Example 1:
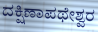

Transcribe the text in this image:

ದಕ್ಷಿಣಾಪಥೇಶ್ವರ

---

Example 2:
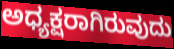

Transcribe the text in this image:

ಅಧ್ಯಕ್ಷರಾಗಿರುವುದು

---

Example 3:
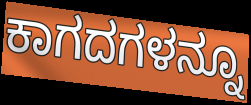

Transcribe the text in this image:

ಕಾಗದಗಳನ್ನೂ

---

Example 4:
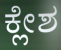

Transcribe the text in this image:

ಕ್ಲೇಶ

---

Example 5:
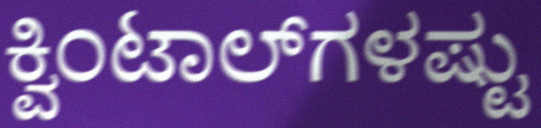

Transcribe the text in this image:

ಕ್ವಿಂಟಾಲ್‌ಗಳಷ್ಟು